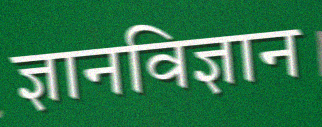
ज्ञानविज्ञान